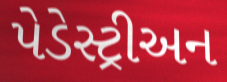
પેડેસ્ટ્રીઅન